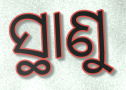
ସ୍ଥାଣୁ